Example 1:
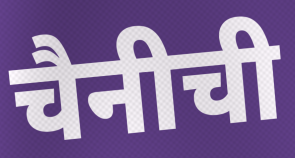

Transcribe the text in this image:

चैनीची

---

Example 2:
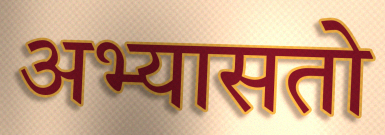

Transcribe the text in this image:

अभ्यासतो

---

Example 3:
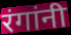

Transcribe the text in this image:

रंगांनी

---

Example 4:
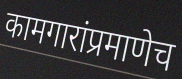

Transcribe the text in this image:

कामगारांप्रमाणेच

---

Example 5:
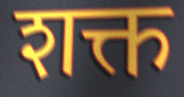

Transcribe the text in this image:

शक्त